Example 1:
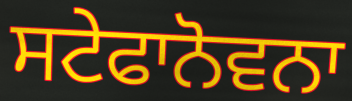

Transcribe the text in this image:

ਸਟੇਫਾਨੋਵਨਾ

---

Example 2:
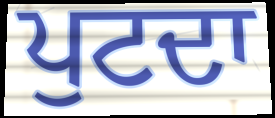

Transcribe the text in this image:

ਪੁਟਦਾ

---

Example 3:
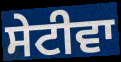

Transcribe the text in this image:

ਸੇਟੀਵਾ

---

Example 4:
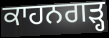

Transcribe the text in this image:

ਕਾਹਨਗੜ੍ਹ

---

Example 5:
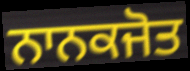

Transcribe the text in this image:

ਨਾਨਕਜੋਤ